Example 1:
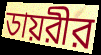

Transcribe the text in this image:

ডায়রীর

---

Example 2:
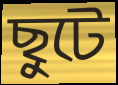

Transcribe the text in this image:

ছুটে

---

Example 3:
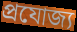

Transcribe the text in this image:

প্রযোজ্য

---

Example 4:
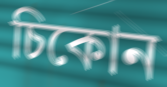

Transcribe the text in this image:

চিকোন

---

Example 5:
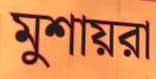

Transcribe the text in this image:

মুশায়রা